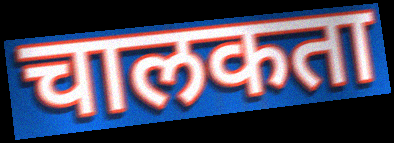
चालकता